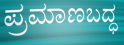
ಪ್ರಮಾಣಬದ್ಧ